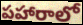
పహారాలో